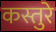
कस्तुरे